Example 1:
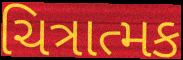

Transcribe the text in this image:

ચિત્રાત્મક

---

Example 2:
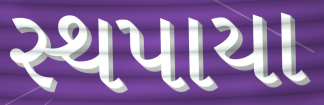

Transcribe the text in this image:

સ્થપાયા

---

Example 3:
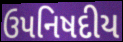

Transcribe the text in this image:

ઉપનિષદીય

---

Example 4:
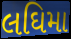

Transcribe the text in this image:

લઘિમા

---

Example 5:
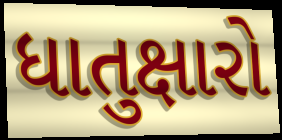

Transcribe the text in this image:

ધાતુક્ષારો